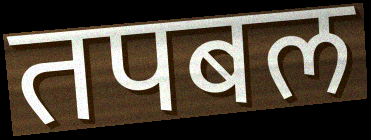
तपबल